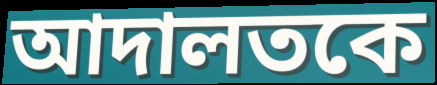
আদালতকে